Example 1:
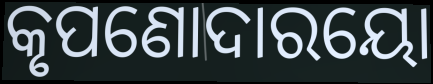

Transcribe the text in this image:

କୃପଣୋଦାରୟୋ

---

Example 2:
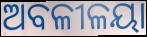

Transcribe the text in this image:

ଅବଳୀଳୟା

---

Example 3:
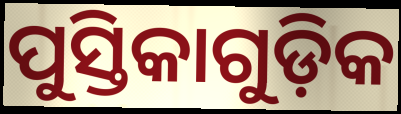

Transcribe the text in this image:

ପୁସ୍ତିକାଗୁଡ଼ିକ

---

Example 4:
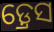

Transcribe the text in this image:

ଡ଼୍ରେସ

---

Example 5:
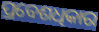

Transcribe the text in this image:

ପ୍ରବେଶଧିକାର